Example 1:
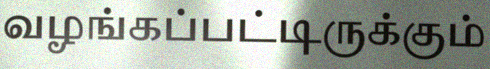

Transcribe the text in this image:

வழங்கப்பட்டிருக்கும்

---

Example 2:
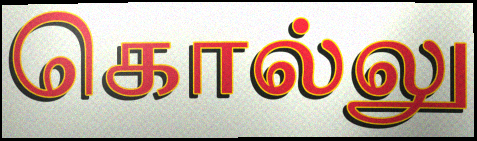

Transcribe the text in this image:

கொல்லு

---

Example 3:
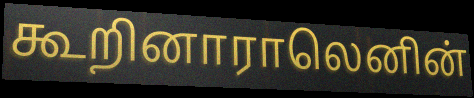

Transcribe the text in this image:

கூறினாராலெனின்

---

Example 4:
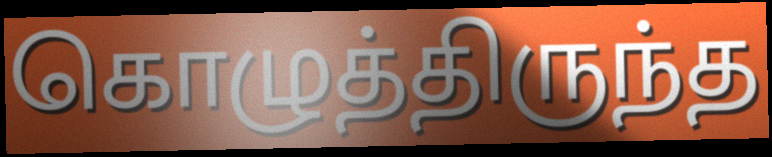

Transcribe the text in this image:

கொழுத்திருந்த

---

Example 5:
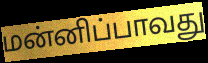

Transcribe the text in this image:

மன்னிப்பாவது